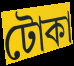
টোকা